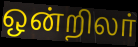
ஒன்றிலர்